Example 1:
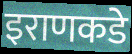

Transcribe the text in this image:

इराणकडे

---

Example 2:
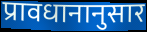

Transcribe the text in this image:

प्रावधानानुसार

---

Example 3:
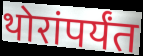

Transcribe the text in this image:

थोरांपर्यंत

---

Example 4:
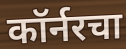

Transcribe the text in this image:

कॉर्नरचा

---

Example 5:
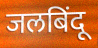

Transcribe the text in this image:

जलबिंदू